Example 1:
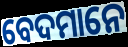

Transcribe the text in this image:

ବେଦମାନେ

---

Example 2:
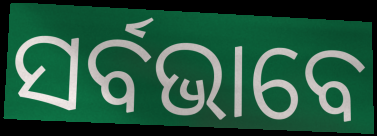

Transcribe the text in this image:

ସର୍ବଭାବେ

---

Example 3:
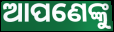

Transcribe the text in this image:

ଆପଣେଙ୍କୁ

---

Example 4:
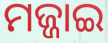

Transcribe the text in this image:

ମଜ୍ଜାଇ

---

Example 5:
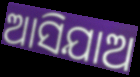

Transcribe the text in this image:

ଆସିଯାଅ